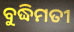
ବୁଦ୍ଧିମତୀ